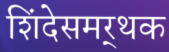
शिंदेसमर्थक